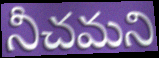
నీచమని